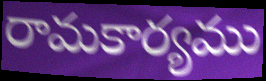
రామకార్యము